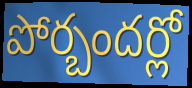
పోర్బందర్లో